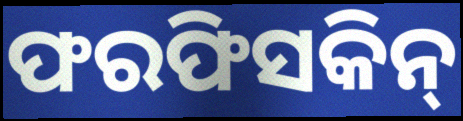
ଫରଫିସକିନ୍